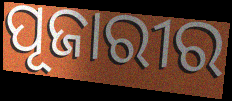
ପୂଜାରୀର